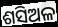
ଶସିଅଳ